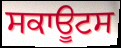
ਸਕਾਊਟਸ